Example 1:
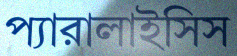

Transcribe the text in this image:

প্যারালাইসিস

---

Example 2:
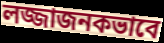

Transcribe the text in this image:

লজ্জাজনকভাবে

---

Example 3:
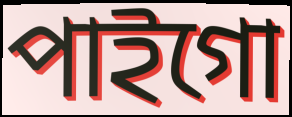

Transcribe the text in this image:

পাইগো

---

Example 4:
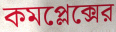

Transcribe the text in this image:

কমপ্লেক্সের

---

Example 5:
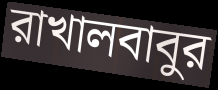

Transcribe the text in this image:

রাখালবাবুর